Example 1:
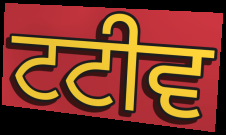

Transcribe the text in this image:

ਟਟੀਵ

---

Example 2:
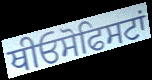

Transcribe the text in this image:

ਥੀਓਸੋਫਿਸਟਾਂ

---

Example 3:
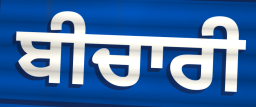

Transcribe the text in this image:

ਬੀਚਾਰੀ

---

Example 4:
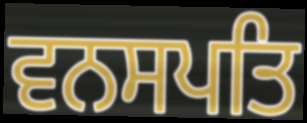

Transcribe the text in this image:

ਵਨਸਪਤਿ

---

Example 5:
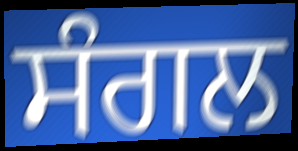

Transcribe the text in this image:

ਸੰਗਲ